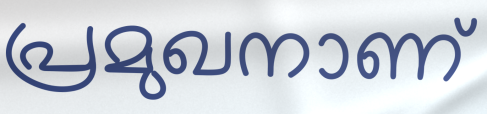
പ്രമുഖനാണ്